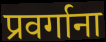
प्रवर्गाना